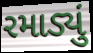
રમાડ્યું